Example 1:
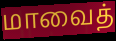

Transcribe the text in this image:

மாவைத்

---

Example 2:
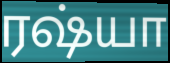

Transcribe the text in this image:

ரஷ்யா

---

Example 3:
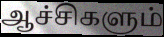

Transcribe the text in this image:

ஆச்சிகளும்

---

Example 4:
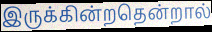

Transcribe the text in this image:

இருக்கின்றதென்றால்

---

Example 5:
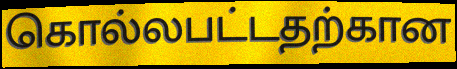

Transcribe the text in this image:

கொல்லபட்டதற்கான